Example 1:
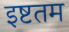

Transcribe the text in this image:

इष्टतम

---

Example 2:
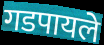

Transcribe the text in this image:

गडपायले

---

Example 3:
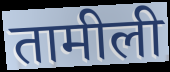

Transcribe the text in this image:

तामीली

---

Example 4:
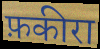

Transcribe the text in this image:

फ़कीरा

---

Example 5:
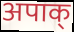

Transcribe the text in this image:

अपाक्